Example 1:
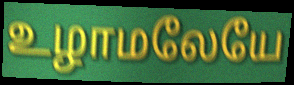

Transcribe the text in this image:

உழாமலேயே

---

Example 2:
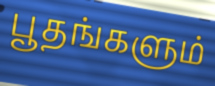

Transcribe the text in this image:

பூதங்களும்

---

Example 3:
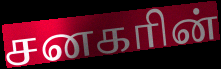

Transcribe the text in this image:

சனகரின்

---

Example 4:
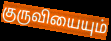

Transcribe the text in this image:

குருவியையும்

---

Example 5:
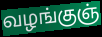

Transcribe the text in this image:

வழங்குஞ்